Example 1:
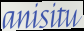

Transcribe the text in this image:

anisitu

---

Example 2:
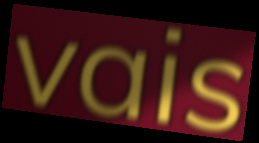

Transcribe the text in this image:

vais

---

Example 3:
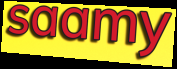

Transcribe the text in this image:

saamy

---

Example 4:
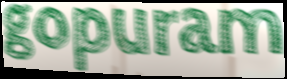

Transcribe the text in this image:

gopuram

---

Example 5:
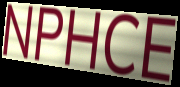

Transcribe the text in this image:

NPHCE